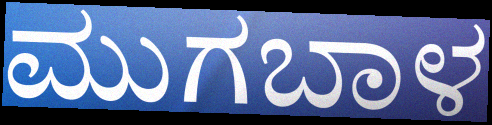
ಮುಗಬಾಳ